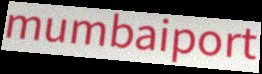
mumbaiport